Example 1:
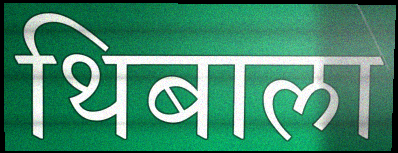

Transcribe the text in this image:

थिबाला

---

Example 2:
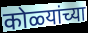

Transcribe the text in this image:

कोळ्यांच्या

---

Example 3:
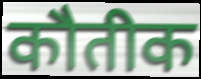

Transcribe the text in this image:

कौतीक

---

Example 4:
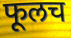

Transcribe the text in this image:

फूलच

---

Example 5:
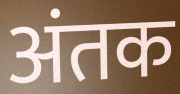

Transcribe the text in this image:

अंतक